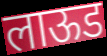
लाऊड